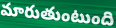
మారుతుంటుంది